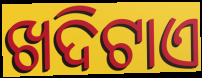
ଖଦିଟାଏ